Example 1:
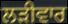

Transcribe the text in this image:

ਲੜੀਵਾਰ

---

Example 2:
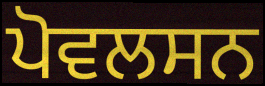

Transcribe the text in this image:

ਪੋਵਲਸਨ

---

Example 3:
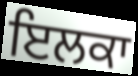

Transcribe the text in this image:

ਇਲਕਾ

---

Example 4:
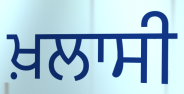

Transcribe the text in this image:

ਖ਼ਲਾਸੀ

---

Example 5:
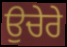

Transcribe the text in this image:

ਉਚੇਰੇ